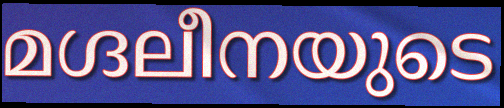
മഗ്ദലീനയുടെ